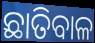
ଛାତିବାଳ